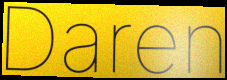
Daren